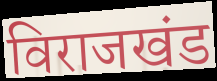
विराजखंड